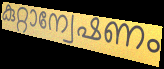
കുറ്റാന്വേഷണം